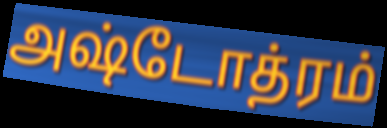
அஷ்டோத்ரம்